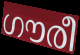
ഗൗരീ